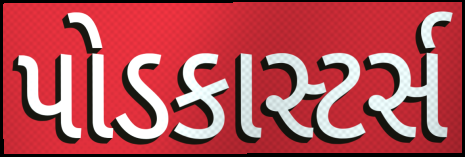
પોડકાસ્ટર્સ